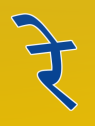
रे